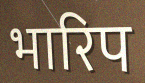
भारिप